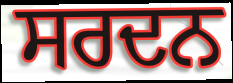
ਸਰਦਨ